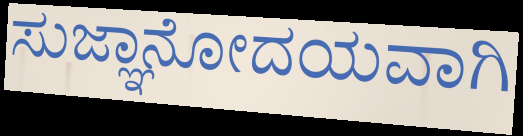
ಸುಜ್ಞಾನೋದಯವಾಗಿ